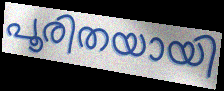
പൂരിതയായി